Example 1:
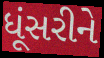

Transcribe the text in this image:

ધૂંસરીને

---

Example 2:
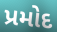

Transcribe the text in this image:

પ્રમોદ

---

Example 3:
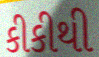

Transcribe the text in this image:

કીકીથી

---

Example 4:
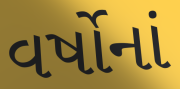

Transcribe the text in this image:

વર્ષોનાં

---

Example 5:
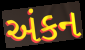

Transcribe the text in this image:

અંકન